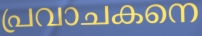
പ്രവാചകനെ